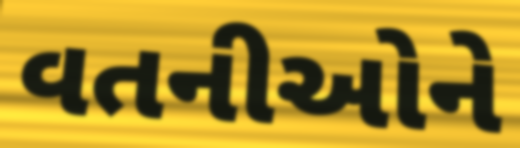
વતનીઓને